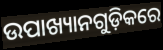
ଉପାଖ୍ୟାନଗୁଡ଼ିକରେ